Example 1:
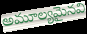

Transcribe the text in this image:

అమూల్యమైనవి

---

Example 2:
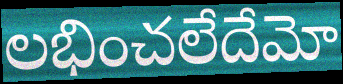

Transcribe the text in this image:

లభించలేదేమో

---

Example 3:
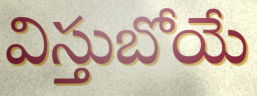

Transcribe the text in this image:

విస్తుబోయే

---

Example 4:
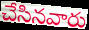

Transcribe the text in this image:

చేసినవారు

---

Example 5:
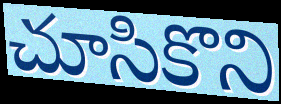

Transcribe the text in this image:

చూసికొని